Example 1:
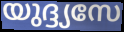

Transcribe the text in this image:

യുദ്ദ്യസേ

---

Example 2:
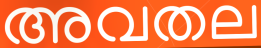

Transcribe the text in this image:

അവതല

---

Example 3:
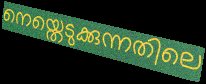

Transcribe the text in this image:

നെയ്തെടുക്കുന്നതിലെ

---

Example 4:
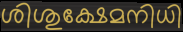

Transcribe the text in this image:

ശിശുക്ഷേമനിധി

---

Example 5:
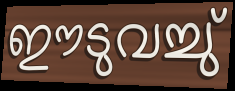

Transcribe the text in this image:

ഈടുവച്ചു്